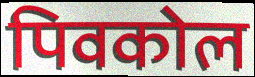
पिवकोल